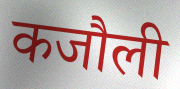
कजौली